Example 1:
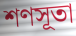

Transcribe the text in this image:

শণসূতা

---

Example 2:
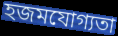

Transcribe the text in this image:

হজমযোগ্যতা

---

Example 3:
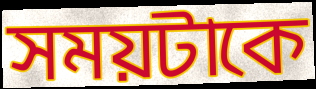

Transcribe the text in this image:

সময়টাকে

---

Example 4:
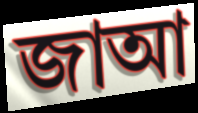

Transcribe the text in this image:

জাআ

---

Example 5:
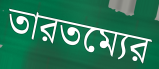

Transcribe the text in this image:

তারতম্যের